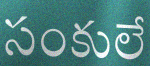
సంకులే